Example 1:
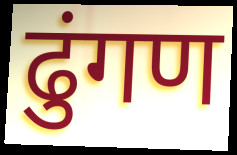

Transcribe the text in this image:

ढुंगण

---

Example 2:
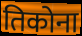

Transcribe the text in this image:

तिकोना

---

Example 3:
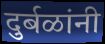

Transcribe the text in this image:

दुर्बळांनी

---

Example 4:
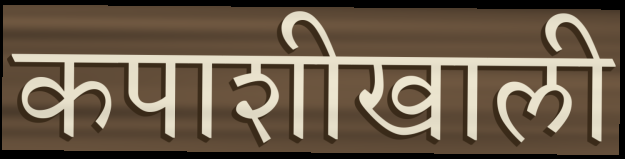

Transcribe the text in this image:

कपाशीखाली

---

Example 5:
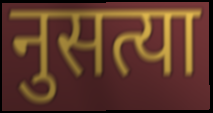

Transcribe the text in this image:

नुसत्या